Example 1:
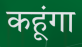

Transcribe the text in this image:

कहूंगा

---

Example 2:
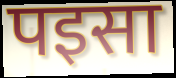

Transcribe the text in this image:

पइसा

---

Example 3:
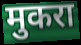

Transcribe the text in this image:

मुकरा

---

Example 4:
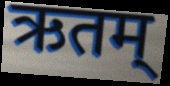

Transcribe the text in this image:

ऋतम्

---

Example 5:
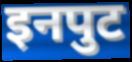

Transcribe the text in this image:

इनपुट